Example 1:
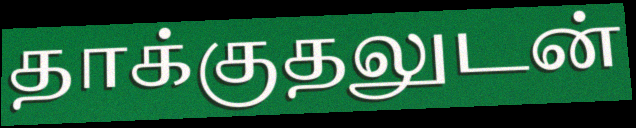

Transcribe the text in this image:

தாக்குதலுடன்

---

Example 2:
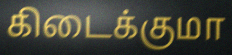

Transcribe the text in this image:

கிடைக்குமா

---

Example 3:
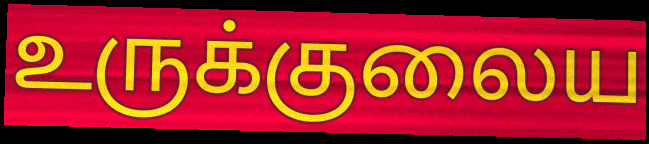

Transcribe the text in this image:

உருக்குலைய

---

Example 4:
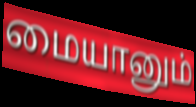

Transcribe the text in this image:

மையானும்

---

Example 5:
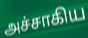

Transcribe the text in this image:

அச்சாகிய